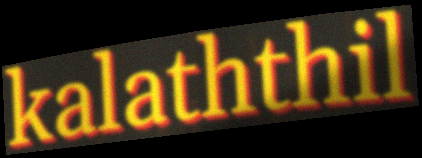
kalaththil